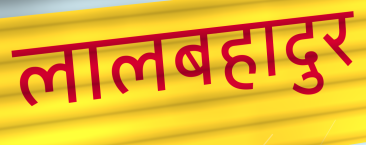
लालबहादुर